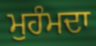
ਮੁਹੰਮਦਾ